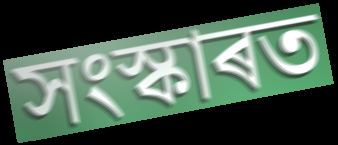
সংস্কাৰত